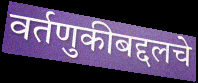
वर्तणुकीबद्दलचे